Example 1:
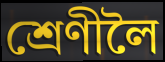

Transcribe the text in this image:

শ্ৰেণীলৈ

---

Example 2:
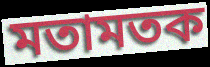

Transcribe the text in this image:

মতামতক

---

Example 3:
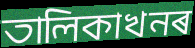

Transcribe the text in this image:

তালিকাখনৰ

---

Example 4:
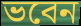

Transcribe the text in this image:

ভবেন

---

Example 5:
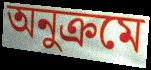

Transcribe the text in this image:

অনুক্ৰমে